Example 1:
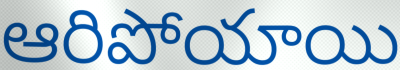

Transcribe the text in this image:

ఆరిపోయాయి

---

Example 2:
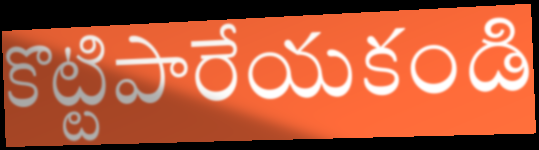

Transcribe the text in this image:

కొట్టిపారేయకండి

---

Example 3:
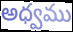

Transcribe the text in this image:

అధ్వము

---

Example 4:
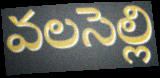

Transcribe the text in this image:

వలసెల్లి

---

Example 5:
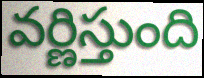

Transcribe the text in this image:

వర్ణిస్తుంది